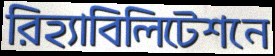
রিহ্যাবিলিটেশনে